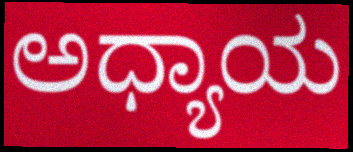
ಅಧ್ಯಾಯ